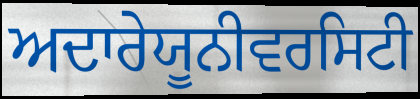
ਅਦਾਰੇਯੂਨੀਵਰਸਿਟੀ